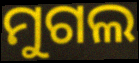
ମୁଗଲ